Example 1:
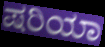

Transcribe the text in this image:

ಷರಿಯಾ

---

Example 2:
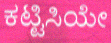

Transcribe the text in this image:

ಕಟ್ಟಿಸಿಯೇ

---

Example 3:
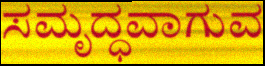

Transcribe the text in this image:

ಸಮೃದ್ಧವಾಗುವ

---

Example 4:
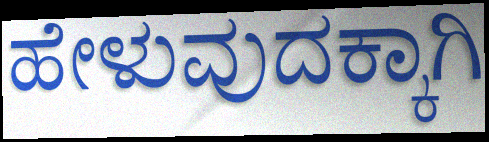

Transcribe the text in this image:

ಹೇಳುವುದಕ್ಕಾಗಿ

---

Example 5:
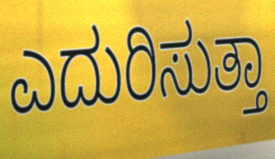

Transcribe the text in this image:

ಎದುರಿಸುತ್ತಾ